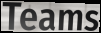
Teams